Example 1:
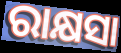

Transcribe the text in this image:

ରାକ୍ଷସା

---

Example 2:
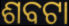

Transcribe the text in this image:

ଶବଟା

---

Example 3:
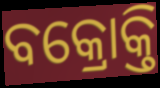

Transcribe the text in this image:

ବକ୍ରୋକ୍ତି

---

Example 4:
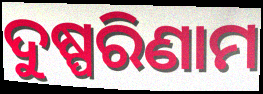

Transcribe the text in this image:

ଦୁଷ୍ପରିଣାମ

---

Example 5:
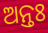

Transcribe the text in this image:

ଅନ୍ତଃ